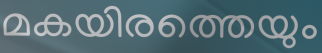
മകയിരത്തെയും